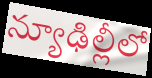
న్యూఢిల్లీలో